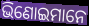
ଭିଣୋଇମାନେ